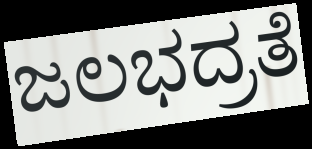
ಜಲಭದ್ರತೆ